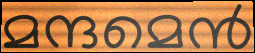
മന്ദമെൻ